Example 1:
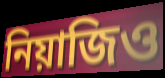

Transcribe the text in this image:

নিয়াজিও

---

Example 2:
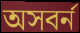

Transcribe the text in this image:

অসবর্ন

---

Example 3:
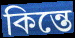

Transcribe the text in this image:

কিন্তে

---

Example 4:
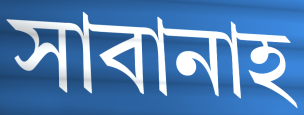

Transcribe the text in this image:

সাবানাহ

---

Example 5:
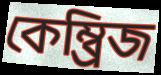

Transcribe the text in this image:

কেম্ব্রিজ